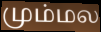
மும்மல